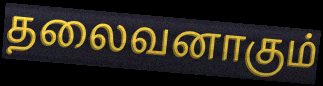
தலைவனாகும்